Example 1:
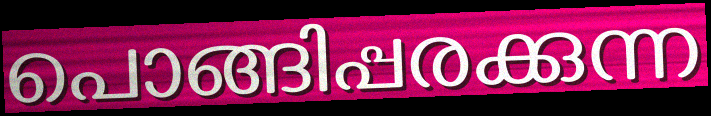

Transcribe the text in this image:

പൊങ്ങിപ്പരക്കുന്ന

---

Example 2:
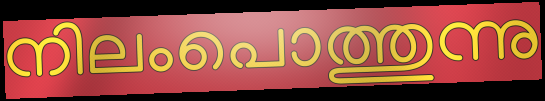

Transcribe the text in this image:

നിലംപൊത്തുന്നു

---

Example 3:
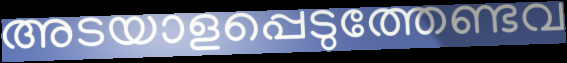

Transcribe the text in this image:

അടയാളപ്പെടുത്തേണ്ടവ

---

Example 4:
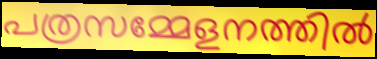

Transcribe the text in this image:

പത്രസമ്മേളനത്തിൽ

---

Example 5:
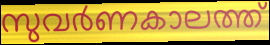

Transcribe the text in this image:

സുവർണകാലത്ത്